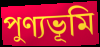
পুণ্যভূমি